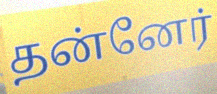
தன்னேர்